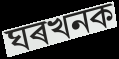
ঘৰখনক